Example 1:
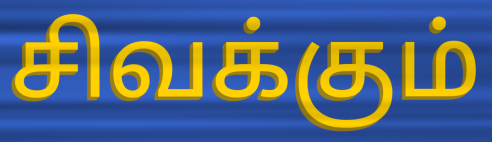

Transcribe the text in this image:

சிவக்கும்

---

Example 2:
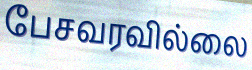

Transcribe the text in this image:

பேசவரவில்லை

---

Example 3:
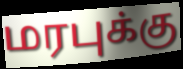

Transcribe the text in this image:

மரபுக்கு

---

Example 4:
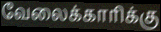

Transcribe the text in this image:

வேலைக்காரிக்கு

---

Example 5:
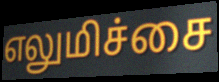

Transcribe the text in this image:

எலுமிச்சை